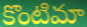
కొంటిమా